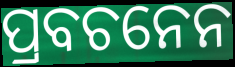
ପ୍ରବଚନେନ